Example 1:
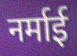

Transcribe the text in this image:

नर्माई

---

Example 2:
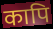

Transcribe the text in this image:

कापि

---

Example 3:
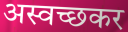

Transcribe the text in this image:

अस्वच्छकर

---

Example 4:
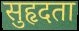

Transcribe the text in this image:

सुहृदता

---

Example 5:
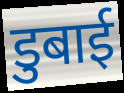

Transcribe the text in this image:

डुबाई